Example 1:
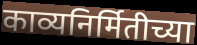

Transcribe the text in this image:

काव्यनिर्मितीच्या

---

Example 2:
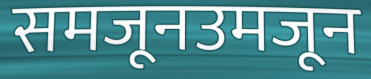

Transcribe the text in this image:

समजूनउमजून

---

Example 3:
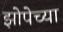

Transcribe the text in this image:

झोपेच्या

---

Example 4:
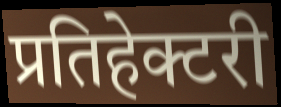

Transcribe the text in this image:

प्रतिहेक्टरी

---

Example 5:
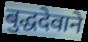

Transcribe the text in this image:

बुद्धदेवाने